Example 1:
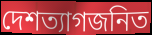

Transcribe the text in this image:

দেশত্যাগজনিত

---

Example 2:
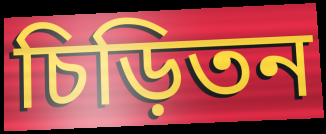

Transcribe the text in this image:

চিড়িতন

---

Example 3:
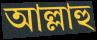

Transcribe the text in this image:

আল্লাহু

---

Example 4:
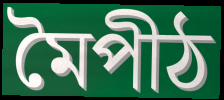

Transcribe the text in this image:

মৈপীঠ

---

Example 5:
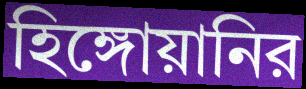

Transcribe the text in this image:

হিঙ্গোয়ানির